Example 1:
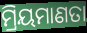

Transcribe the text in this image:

ମ୍ରିୟମାଣତା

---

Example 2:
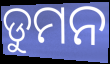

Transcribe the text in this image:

ଡୁମନ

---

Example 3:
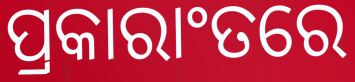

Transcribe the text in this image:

ପ୍ରକାରାଂତରେ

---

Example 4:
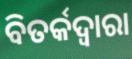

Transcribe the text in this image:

ବିତର୍କଦ୍ୱାରା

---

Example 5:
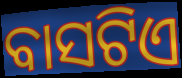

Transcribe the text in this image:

ବାସଟିଏ